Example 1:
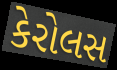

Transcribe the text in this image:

કેરોલસ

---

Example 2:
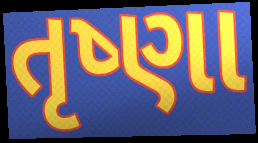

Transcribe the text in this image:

તૃષ્ણા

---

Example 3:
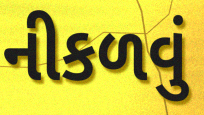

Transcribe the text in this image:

નીકળવું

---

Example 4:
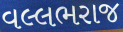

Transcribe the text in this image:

વલ્લભરાજ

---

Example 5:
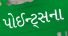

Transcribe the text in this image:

પોઈન્ટ્સના